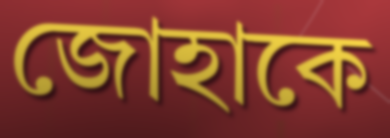
জোহাকে